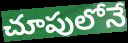
చూపులోనే